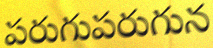
పరుగుపరుగున